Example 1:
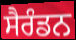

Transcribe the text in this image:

ਸੈਰੰਡਨ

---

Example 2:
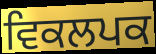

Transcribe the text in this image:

ਵਿਕਲਪਕ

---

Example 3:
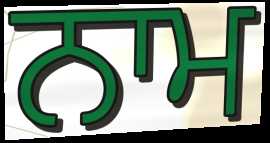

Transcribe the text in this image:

ਨਾਮ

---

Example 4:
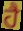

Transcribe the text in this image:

ਹੈ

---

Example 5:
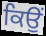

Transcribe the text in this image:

ਕਿਉਂ